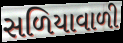
સળિયાવાળી